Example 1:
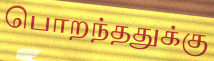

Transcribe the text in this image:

பொறந்ததுக்கு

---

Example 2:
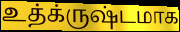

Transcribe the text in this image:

உத்க்ருஷ்டமாக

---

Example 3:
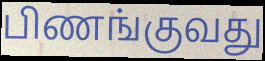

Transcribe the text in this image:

பிணங்குவது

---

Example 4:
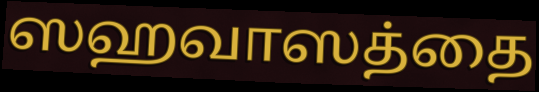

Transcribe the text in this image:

ஸஹவாஸத்தை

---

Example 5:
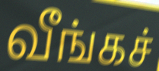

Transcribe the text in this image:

வீங்கச்